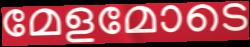
മേളമോടെ